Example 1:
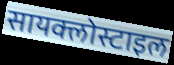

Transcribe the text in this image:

सायक्लोस्टाइल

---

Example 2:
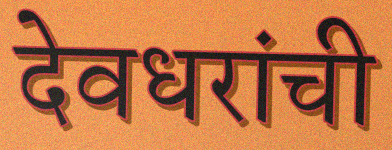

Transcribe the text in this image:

देवधरांची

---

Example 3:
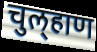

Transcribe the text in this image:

चुल्हाण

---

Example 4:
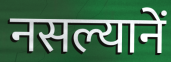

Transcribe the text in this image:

नसल्यानें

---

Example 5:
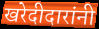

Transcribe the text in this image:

खरेदीदारांनी